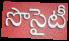
సొసైటీ